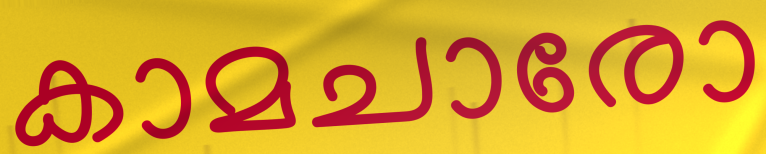
കാമചാരോ